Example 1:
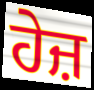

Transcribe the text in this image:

ਹੇਜ਼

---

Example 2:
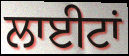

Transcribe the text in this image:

ਲਾਈਟਾਂ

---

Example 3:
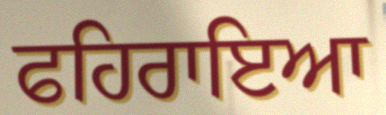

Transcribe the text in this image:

ਫਹਿਰਾਇਆ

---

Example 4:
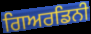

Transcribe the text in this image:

ਗਿਅਰਡਿਨੀ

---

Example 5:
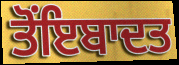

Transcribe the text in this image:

ਤੋਂਇਬਾਦਤ